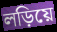
লড়িয়ে